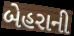
બેહરાની